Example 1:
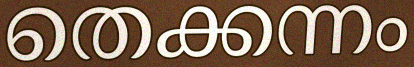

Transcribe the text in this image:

തെക്കന്നം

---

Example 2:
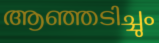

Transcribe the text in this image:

ആഞ്ഞടിച്ചും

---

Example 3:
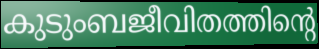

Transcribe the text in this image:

കുടുംബജീവിതത്തിന്റെ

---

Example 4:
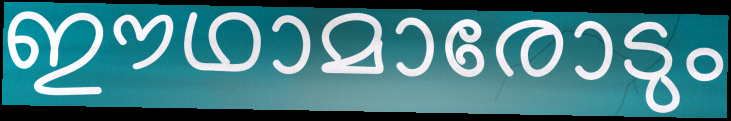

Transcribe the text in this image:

ഈഥാമാരോടും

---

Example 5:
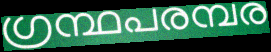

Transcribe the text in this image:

ഗ്രന്ഥപരമ്പര